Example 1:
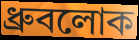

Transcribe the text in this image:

ধ্রুবলোক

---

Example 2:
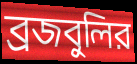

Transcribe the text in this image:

ব্রজবুলির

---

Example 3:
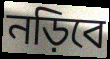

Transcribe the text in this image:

নড়িবে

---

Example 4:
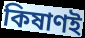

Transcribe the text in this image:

কিষাণই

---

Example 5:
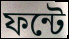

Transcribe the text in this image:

ফন্টে